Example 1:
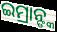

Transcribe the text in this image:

ଇମ୍ରାନ୍ଙ୍କ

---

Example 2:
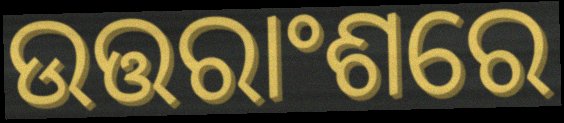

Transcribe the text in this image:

ଉତ୍ତରାଂଶରେ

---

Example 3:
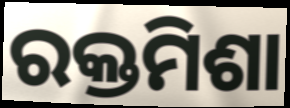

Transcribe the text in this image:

ରକ୍ତମିଶା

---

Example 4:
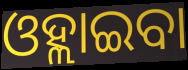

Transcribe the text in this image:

ଓହ୍ଲାଇବା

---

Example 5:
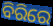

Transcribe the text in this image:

ବିରିରେ